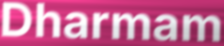
Dharmam